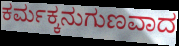
ಕರ್ಮಕ್ಕನುಗುಣವಾದ